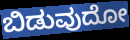
ಬಿಡುವುದೋ